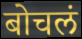
बोचलं